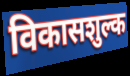
विकासशुल्क